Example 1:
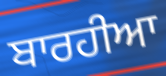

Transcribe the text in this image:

ਬਾਰਹੀਆ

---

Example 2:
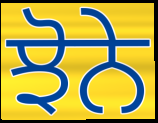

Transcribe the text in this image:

ਝੋਨੇ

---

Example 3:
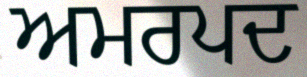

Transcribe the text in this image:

ਅਮਰਪਦ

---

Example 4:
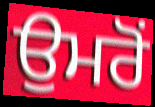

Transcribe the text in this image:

ਉਮਰੋਂ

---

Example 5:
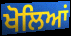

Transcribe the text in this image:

ਖੋਲਿਆਂ